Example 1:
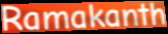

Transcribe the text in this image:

Ramakanth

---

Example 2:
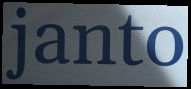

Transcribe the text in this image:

janto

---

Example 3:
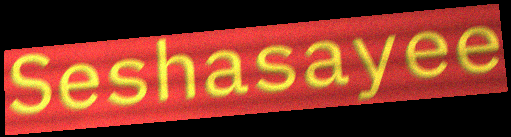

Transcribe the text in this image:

Seshasayee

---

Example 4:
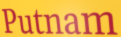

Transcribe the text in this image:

Putnam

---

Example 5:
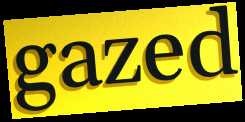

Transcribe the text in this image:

gazed